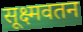
सूक्ष्मवतन